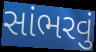
સાંભરવું